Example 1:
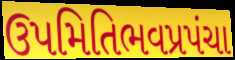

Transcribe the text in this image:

ઉપમિતિભવપ્રપંચા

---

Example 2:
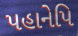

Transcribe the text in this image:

પહાનેપિ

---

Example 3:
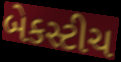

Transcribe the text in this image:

બેકસ્ટીચ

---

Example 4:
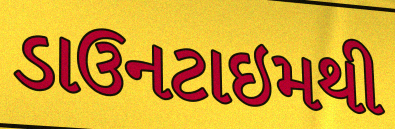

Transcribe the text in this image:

ડાઉનટાઇમથી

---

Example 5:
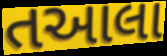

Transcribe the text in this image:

તઆલા